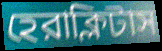
হেরাক্লিটাস